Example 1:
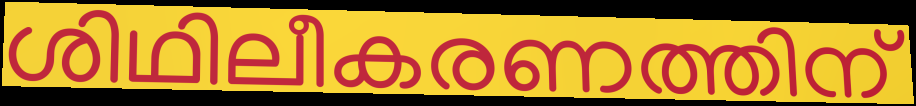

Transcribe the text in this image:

ശിഥിലീകരണത്തിന്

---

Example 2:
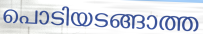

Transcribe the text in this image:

പൊടിയടങ്ങാത്ത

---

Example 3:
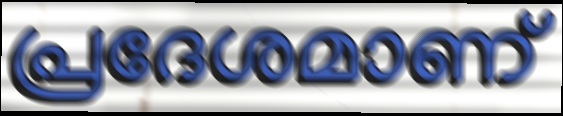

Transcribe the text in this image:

പ്രദേശമാണ്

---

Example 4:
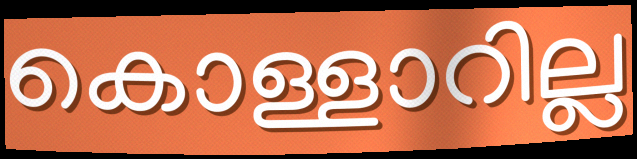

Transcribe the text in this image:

കൊള്ളാറില്ല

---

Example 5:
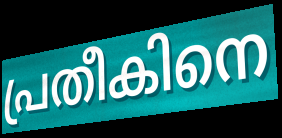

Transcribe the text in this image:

പ്രതീകിനെ